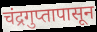
चंद्रगुप्तापासून